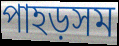
পাহড়সম